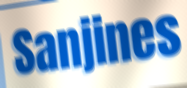
Sanjines